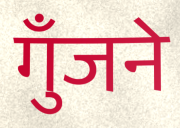
गुँजने